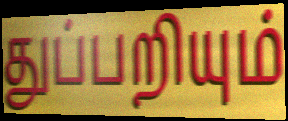
துப்பறியும்